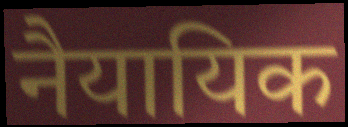
नैयायिक